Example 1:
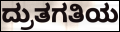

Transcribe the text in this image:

ದ್ರುತಗತಿಯ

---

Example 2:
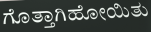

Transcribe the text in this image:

ಗೊತ್ತಾಗಿಹೋಯಿತು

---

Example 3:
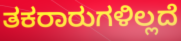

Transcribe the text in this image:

ತಕರಾರುಗಳಿಲ್ಲದೆ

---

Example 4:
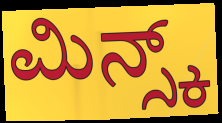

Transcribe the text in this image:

ಮಿನ್ಸ್ಕ್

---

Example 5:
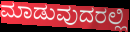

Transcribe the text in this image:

ಮಾಡುವುದರಲ್ಲಿ